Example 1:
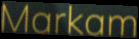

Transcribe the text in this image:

Markam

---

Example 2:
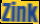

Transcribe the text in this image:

Zink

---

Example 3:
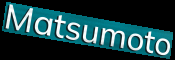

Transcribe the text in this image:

Matsumoto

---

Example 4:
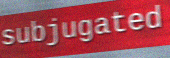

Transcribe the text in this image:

subjugated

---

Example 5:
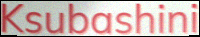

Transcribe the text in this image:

Ksubashini